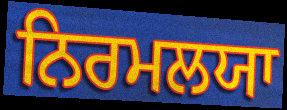
ਨਿਰਮਲਯਾ